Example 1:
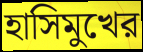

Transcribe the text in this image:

হাসিমুখের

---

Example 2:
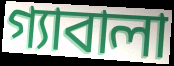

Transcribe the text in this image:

গ্যাবালা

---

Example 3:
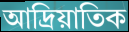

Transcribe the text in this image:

আদ্রিয়াতিক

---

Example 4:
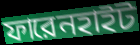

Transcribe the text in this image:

ফারেনহাইট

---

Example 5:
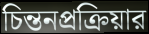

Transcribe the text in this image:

চিন্তনপ্রক্রিয়ার